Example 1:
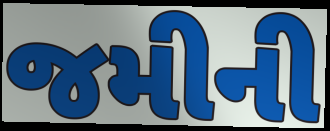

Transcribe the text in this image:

જમીની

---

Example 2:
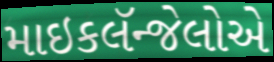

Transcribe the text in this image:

માઇકલૅન્જેલોએ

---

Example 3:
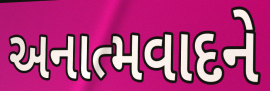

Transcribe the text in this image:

અનાત્મવાદને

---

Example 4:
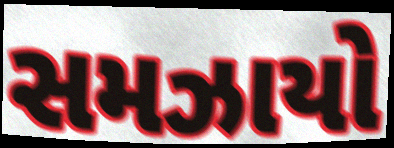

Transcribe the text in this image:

સમઝાયો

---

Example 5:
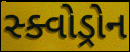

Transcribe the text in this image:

સ્ક્વોડ્રોન